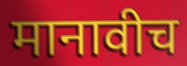
मानावीच